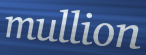
mullion